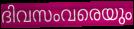
ദിവസംവരെയും